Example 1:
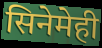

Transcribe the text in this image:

सिनेमेही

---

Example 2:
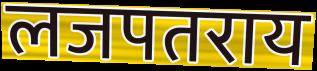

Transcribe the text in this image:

लजपतराय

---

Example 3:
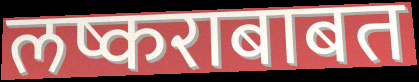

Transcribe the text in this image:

लष्कराबाबत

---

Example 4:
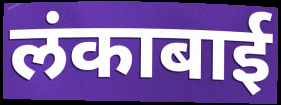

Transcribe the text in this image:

लंकाबाई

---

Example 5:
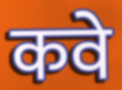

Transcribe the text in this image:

कवे